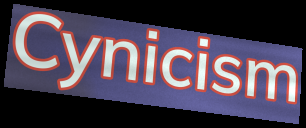
Cynicism